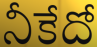
నీకేదో